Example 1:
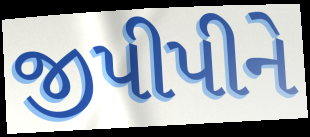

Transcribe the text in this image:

જીપીપીને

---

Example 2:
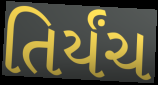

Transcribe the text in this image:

તિર્યંચ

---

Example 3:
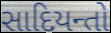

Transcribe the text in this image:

સાદિયન્તો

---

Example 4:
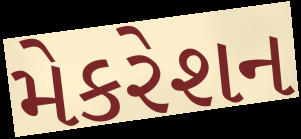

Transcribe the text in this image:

મેકરેશન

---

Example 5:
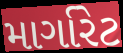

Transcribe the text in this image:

માર્ગારેટ